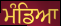
ਮੰਡਿਆ